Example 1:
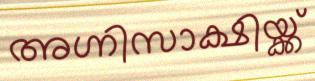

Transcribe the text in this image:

അഗ്നിസാക്ഷിയ്ക്ക്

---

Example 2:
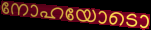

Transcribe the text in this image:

നോഹയോടൊ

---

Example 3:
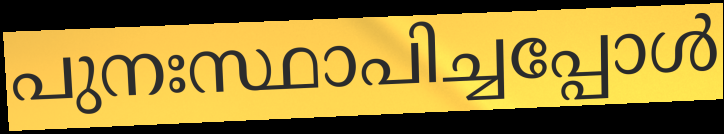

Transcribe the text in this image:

പുനഃസ്ഥാപിച്ചപ്പോൾ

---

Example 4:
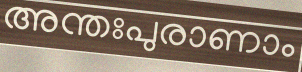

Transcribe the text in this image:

അന്തഃപുരാണാം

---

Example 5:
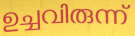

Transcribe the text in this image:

ഉച്ചവിരുന്ന്